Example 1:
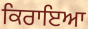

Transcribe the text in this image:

ਕਿਰਾਇਆ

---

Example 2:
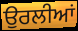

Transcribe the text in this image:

ਉਰਲੀਆਂ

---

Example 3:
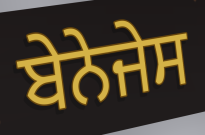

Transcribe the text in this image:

ਬੇਨੇਜੇਸ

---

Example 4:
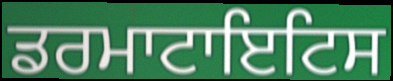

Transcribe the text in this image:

ਡਰਮਾਟਾਇਟਿਸ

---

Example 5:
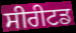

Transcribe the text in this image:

ਸੀਰੀਟਡ